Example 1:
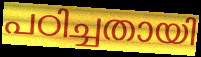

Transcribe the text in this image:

പഠിച്ചതായി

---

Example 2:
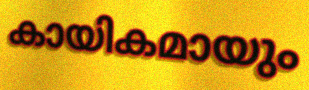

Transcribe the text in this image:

കായികമായും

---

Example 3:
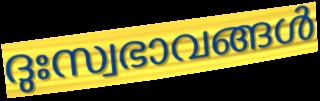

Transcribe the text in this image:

ദുഃസ്വഭാവങ്ങൾ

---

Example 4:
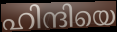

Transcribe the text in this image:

ഹിന്ദിയെ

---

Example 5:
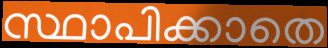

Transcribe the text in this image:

സ്ഥാപിക്കാതെ